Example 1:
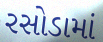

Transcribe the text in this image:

રસોડામાં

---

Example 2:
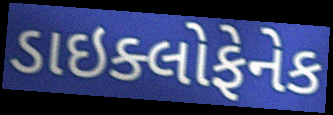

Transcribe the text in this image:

ડાઇક્લોફેનેક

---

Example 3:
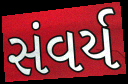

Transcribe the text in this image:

સંવર્ય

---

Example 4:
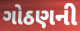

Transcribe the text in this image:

ગોઠણની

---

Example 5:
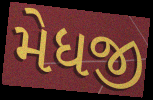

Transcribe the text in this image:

મેધજી